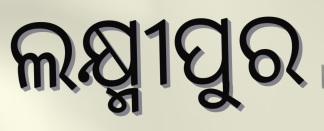
ଲକ୍ଷ୍ମୀପୁର